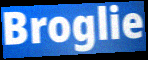
Broglie